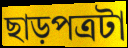
ছাড়পত্রটা